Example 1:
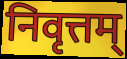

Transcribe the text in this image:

निवृत्तम्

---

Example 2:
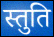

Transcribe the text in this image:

स्तुति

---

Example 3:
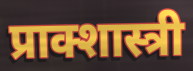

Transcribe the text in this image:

प्राक्शास्त्री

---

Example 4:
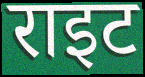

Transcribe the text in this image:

राइट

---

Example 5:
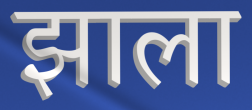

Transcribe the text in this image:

झाला